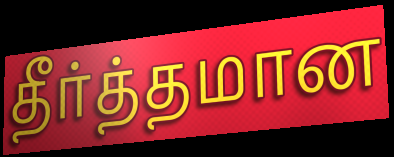
தீர்த்தமான